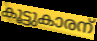
കൂട്ടുകാരന്